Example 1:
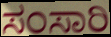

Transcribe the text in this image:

ಸಂಸಾರಿ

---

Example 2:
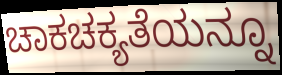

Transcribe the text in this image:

ಚಾಕಚಕ್ಯತೆಯನ್ನೂ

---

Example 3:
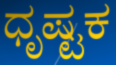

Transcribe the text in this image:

ಧೃಷ್ಟಕ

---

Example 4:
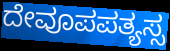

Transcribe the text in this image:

ದೇವೂಪಪತ್ಯಸ್ಸ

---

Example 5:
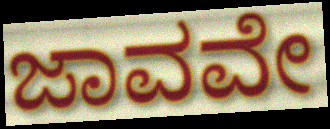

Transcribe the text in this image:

ಜಾವವೇ